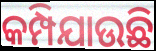
କମ୍ପିଯାଉଛି